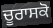
ਚੂਰਾਸਕੋ